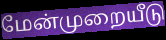
மேன்முறையீடு